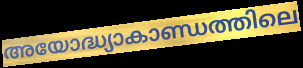
അയോദ്ധ്യാകാണ്ഡത്തിലെ